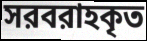
সরবরাহকৃত